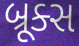
બ્રૂક્સ